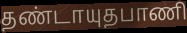
தண்டாயுதபாணி